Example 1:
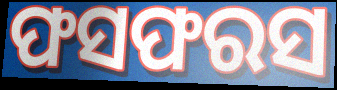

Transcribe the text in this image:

ଫସଫରସ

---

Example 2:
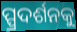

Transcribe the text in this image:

ପ୍ପ୍ରଦର୍ଶନକୁ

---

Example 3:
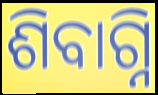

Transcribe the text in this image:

ଶିବାଗ୍ନି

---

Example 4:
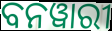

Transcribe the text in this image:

ବନୱାରୀ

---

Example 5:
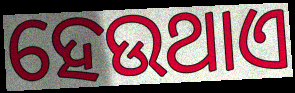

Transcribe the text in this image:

ହେଉଥାଏ